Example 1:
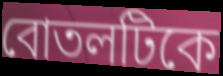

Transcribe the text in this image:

বোতলটিকে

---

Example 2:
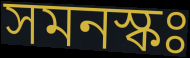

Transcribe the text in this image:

সমনস্কঃ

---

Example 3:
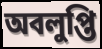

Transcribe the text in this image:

অবলুপ্তি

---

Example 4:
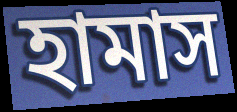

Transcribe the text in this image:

হামাস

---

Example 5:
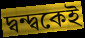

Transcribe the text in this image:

দ্বন্দ্বকেই